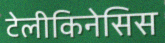
टेलीकिनेसिस